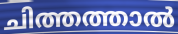
ചിത്തത്താൽ